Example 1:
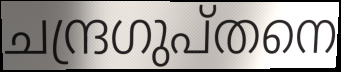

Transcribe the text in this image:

ചന്ദ്രഗുപ്തനെ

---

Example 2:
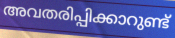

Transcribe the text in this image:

അവതരിപ്പിക്കാറുണ്ട്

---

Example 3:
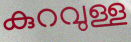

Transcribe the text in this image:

കുറവുള്ള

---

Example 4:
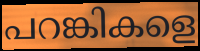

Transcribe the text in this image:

പറങ്കികളെ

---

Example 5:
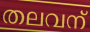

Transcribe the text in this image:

തലവന്